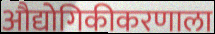
औद्योगिकीकरणाला